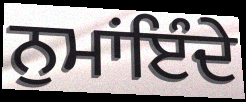
ਨੁਮਾਂਇੰਦੇ